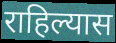
राहिल्यास